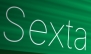
Sexta